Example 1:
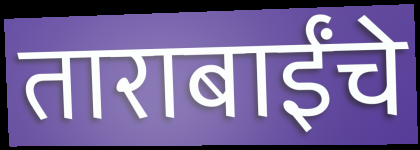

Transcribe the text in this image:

ताराबाईंचे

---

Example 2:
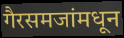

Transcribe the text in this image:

गैरसमजांमधून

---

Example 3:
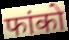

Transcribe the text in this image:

फांको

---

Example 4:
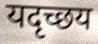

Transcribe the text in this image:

यदृच्छय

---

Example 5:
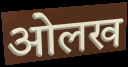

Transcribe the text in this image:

ओलख